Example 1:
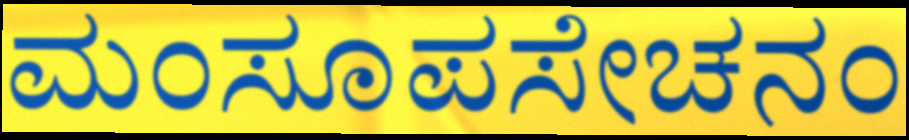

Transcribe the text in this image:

ಮಂಸೂಪಸೇಚನಂ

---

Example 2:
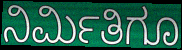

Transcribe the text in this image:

ನಿರ್ಮಿತಿಗೂ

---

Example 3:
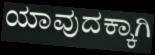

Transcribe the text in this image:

ಯಾವುದಕ್ಕಾಗಿ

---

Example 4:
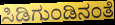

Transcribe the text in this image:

ಸಿಡಿಗುಂಡಿನಂತೆ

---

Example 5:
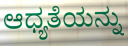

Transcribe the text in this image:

ಆಧ್ಯತೆಯನ್ನು